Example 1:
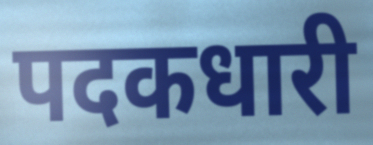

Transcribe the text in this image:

पदकधारी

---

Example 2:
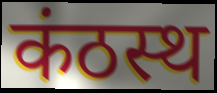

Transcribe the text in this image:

कंठस्थ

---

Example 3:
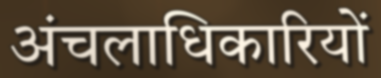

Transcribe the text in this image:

अंचलाधिकारियों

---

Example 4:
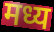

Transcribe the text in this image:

मध्य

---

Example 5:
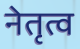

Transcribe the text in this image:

नेतृत्‍व